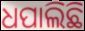
ଧପାଲିଛି